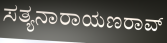
ಸತ್ಯನಾರಾಯಣರಾವ್